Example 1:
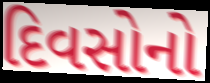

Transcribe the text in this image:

દિવસોનો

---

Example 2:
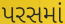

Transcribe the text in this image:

પરસમાં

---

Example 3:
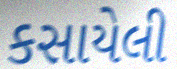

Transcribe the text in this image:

કસાયેલી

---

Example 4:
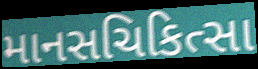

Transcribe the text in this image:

માનસચિકિત્સા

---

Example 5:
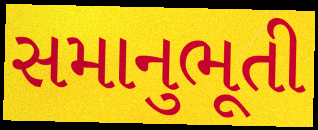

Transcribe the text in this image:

સમાનુભૂતી